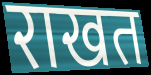
राखत